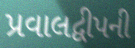
પ્રવાલદ્વીપની